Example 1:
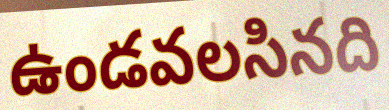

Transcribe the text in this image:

ఉండవలసినది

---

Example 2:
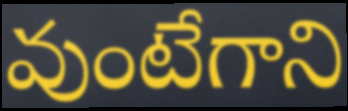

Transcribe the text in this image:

వుంటేగాని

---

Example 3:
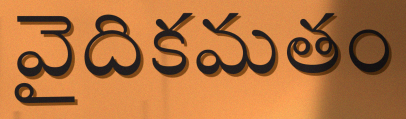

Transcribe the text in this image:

వైదికమతం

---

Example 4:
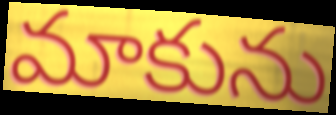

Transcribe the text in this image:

మాకును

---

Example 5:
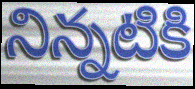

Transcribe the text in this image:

నిన్నటికి